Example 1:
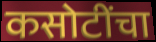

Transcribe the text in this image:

कसोटींचा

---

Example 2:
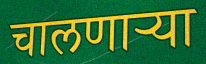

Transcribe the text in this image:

चालणाऱ्या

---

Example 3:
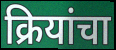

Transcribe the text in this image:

क्रियांचा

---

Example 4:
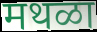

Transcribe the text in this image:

मथळा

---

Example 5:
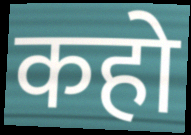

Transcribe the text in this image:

कहो